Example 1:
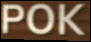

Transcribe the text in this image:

POK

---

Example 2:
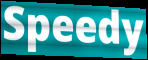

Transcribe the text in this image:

Speedy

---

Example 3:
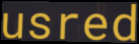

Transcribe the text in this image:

usred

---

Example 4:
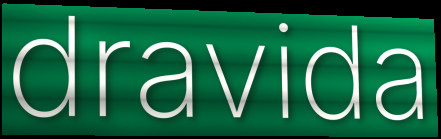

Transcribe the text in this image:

dravida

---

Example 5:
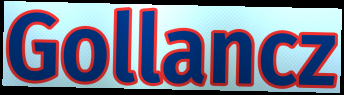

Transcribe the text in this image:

Gollancz